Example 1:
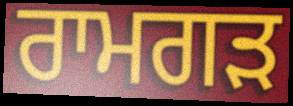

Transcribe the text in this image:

ਰਾਮਗੜ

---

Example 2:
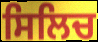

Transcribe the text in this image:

ਸਿਲਿਚ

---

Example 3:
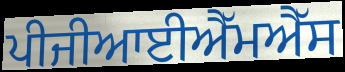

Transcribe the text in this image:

ਪੀਜੀਆਈਐੱਮਐੱਸ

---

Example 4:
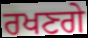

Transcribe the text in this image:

ਰਖਣਗੇ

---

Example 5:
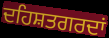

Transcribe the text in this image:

ਦਹਿਸ਼ਤਗਰਦਾਂ